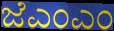
ಜೆಎಂಎಂ